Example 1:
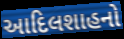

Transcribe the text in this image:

આદિલશાહનો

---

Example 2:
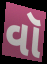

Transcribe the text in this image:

વૉ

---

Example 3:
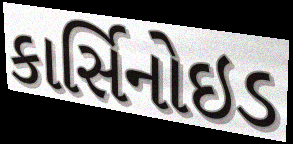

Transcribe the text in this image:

કાર્સિનોઇડ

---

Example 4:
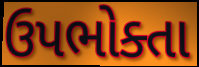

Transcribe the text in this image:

ઉપભોક્તા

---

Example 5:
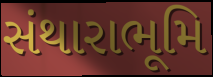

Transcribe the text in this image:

સંથારાભૂમિ